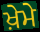
ਖ਼ੇਮੇ